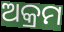
ଅକ୍ରମ